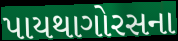
પાયથાગોરસના